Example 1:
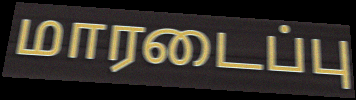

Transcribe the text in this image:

மாரடைப்பு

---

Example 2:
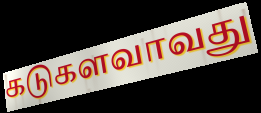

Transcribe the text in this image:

கடுகளவாவது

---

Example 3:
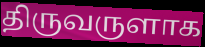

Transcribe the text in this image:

திருவருளாக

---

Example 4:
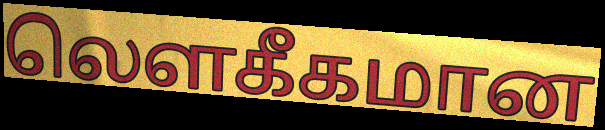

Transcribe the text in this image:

லெளகீகமான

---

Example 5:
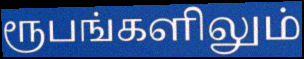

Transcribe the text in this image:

ரூபங்களிலும்